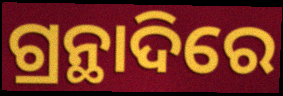
ଗ୍ରନ୍ଥାଦିରେ